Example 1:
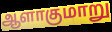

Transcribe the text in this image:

ஆளாகுமாறு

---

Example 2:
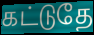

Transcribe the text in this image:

கட்டுதே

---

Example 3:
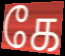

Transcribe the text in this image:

கே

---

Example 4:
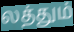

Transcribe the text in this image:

லத்தும்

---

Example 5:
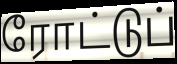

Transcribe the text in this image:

ரோட்டுப்